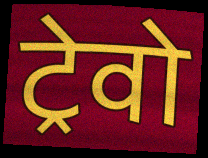
ट्रेवो